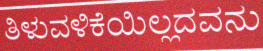
ತಿಳುವಳಿಕೆಯಿಲ್ಲದವನು